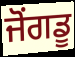
ਜੋਂਗਡੂ